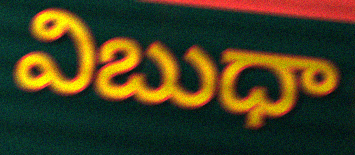
విబుధా